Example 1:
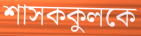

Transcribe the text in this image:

শাসককুলকে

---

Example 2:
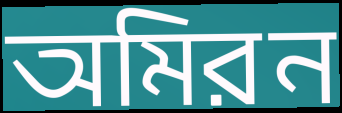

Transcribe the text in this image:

অমিরন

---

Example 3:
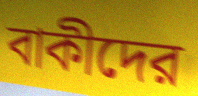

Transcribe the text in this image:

বাকীদের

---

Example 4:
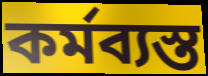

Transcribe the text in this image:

কর্মব্যস্ত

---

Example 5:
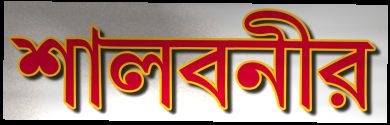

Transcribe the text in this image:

শালবনীর